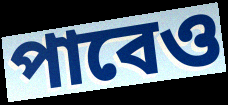
পাবেও